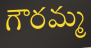
గౌరమ్మ